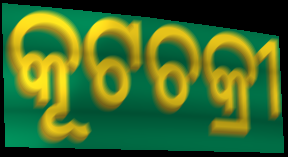
କୂଟଚକ୍ରୀ